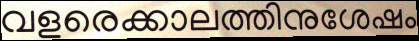
വളരെക്കാലത്തിനുശേഷം